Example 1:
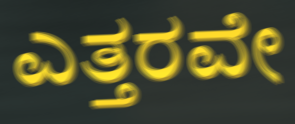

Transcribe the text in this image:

ಎತ್ತರವೇ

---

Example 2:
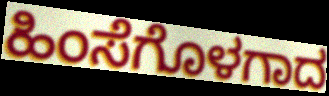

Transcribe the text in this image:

ಹಿಂಸೆಗೊಳಗಾದ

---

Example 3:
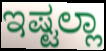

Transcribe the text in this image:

ಇಷ್ಟಲ್ಲಾ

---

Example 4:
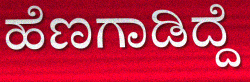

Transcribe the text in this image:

ಹೆಣಗಾಡಿದ್ದೆ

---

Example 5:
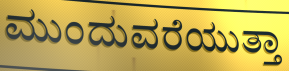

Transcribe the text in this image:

ಮುಂದುವರೆಯುತ್ತಾ